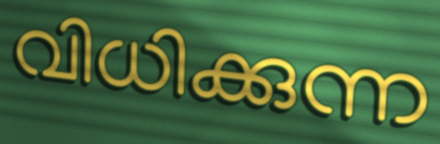
വിധിക്കുന്ന